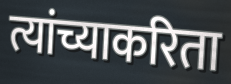
त्यांच्याकरिता